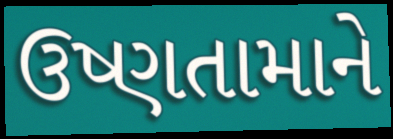
ઉષ્ણતામાને